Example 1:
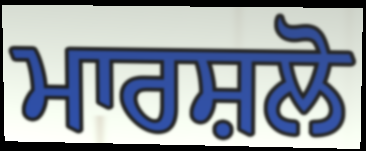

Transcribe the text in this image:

ਮਾਰਸ਼ਲੋ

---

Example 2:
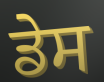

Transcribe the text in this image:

ਡੇਸ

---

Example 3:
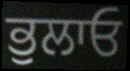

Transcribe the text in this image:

ਭੁਲਾਓ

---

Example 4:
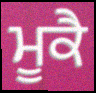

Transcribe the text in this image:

ਮੂਕੈ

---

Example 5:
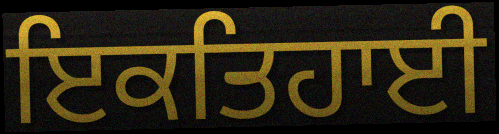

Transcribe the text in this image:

ਇਕਤਿਹਾਈ